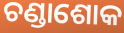
ଚଣ୍ଡାଶୋକ